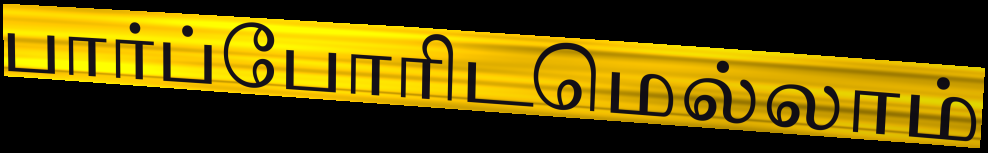
பார்ப்போரிடமெல்லாம்